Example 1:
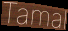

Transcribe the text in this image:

Tamal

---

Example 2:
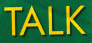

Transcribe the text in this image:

TALK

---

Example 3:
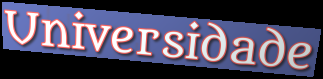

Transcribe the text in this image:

Universidade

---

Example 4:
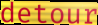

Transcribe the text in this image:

detour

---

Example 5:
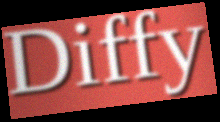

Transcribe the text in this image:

Diffy